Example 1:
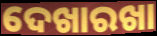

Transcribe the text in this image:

ଦେଖାରଖା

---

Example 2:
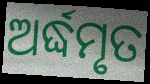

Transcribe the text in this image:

ଅର୍ଦ୍ଧମୃତ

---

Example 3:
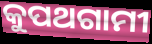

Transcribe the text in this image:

କୁପଥଗାମୀ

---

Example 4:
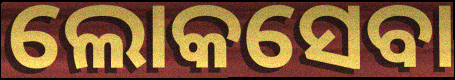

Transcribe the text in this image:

ଲୋକସେବା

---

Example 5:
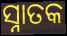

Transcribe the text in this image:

ସ୍ନାତକ